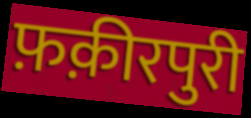
फ़क़ीरपुरी